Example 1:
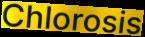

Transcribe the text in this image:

Chlorosis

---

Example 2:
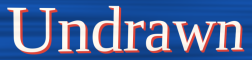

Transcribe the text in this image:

Undrawn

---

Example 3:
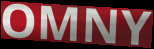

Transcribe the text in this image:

OMNY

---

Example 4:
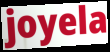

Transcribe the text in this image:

joyela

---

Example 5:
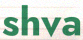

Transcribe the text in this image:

shva